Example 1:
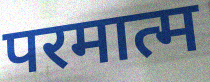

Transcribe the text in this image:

परमात्म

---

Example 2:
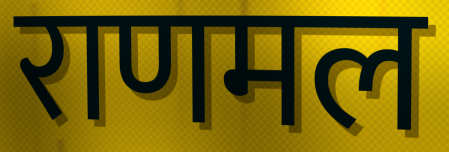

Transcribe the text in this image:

राणमल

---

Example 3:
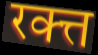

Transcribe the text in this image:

रक्त्त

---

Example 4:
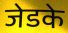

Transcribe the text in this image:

जेडके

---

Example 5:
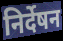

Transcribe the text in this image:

निर्देषन